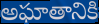
అఘాతానికి